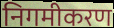
निगमीकरण